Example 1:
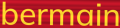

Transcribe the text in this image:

bermain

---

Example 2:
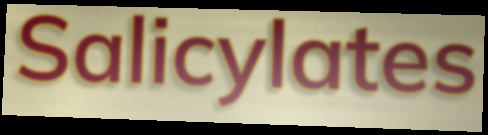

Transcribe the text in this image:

Salicylates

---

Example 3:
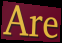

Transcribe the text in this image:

Are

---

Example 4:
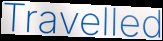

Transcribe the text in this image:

Travelled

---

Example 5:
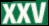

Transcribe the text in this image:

XXV